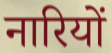
नारियों